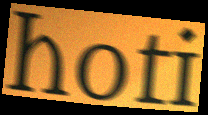
hoti